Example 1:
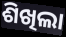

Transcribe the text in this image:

ଶିଖିଲା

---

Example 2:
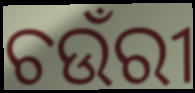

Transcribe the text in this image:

ଚଉଁରୀ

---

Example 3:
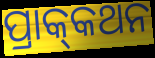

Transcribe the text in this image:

ପ୍ରାକ୍‌କଥନ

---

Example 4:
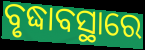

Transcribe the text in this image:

ବୃଦ୍ଧାବସ୍ଥାରେ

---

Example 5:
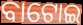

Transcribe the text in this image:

ବାଟୋଇ